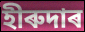
হীৰুদাৰ